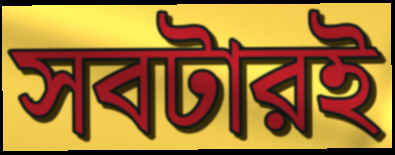
সবটারই